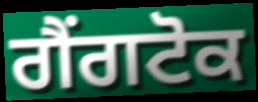
ਗੈਂਗਟੋਕ